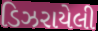
ડિઝરાયેલી